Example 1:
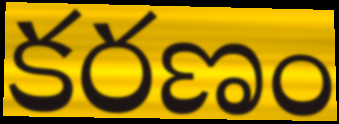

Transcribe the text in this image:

కరణం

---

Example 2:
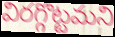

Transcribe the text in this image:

విరగ్గొట్టమని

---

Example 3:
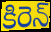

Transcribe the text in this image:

కిరెన్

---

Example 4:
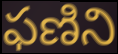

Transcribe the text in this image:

ఫణిని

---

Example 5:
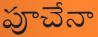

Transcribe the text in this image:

పూచేనా